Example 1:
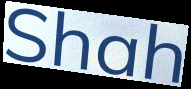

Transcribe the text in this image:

Shah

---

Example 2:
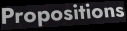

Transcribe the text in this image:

Propositions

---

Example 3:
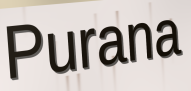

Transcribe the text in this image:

Purana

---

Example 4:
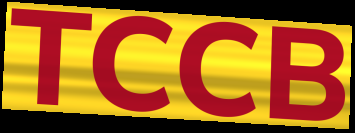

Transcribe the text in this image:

TCCB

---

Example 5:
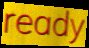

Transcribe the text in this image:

ready